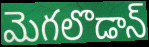
మెగలొడాన్